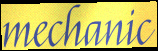
mechanic